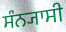
ਸੰਨ੍ਯਾਸੀ